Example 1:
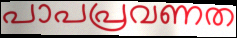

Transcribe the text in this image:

പാപപ്രവണത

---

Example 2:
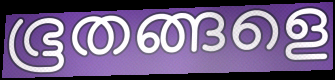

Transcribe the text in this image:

ഭൂതങ്ങളെ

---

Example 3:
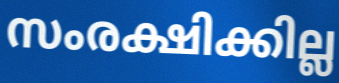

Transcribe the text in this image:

സംരക്ഷിക്കില്ല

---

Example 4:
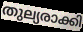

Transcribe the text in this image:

തുല്യരാക്കി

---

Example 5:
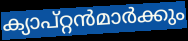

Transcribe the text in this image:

ക്യാപ്റ്റൻമാർക്കും